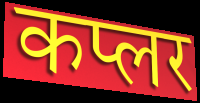
कप्लर